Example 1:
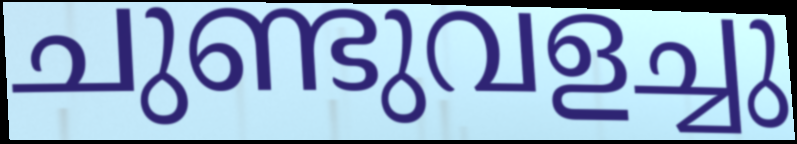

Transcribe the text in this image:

ചുണ്ടുവളച്ചു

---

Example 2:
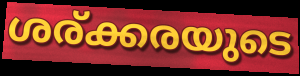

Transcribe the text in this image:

ശര്ക്കരയുടെ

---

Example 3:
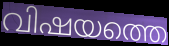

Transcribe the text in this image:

വിഷയത്തെ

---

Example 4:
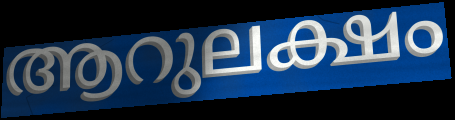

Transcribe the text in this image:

ആറുലക്ഷം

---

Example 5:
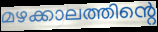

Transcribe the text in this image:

മഴക്കാലത്തിന്റെ